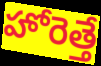
హోరెత్తే